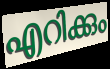
എറിക്കും